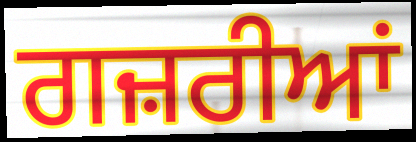
ਗਜ਼ਰੀਆਂ